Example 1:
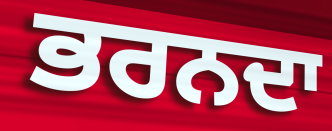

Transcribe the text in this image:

ਭਰਨਦਾ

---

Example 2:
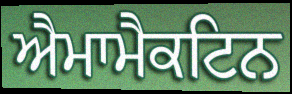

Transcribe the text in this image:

ਐਮਾਮੈਕਟਿਨ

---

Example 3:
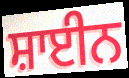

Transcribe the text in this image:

ਸ਼ਾਈਨ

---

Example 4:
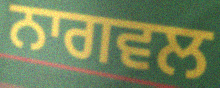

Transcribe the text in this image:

ਨਾਗਵਲ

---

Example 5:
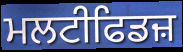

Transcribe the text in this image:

ਮਲਟੀਫਿਡਜ਼